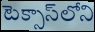
టెక్సాస్‌లోని